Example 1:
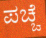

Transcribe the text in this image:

ಪಚ್ಚೆ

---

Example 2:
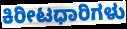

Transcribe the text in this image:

ಕಿರೀಟಧಾರಿಗಳು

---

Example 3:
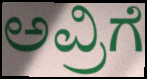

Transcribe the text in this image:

ಅವ್ರಿಗೆ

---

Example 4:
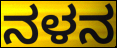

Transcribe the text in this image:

ನಳನ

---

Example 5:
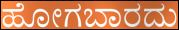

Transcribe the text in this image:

ಹೋಗಬಾರದು